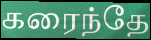
கரைந்தே